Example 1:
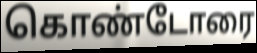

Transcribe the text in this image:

கொண்டோரை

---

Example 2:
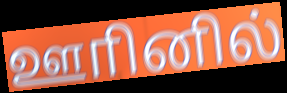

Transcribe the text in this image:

ஊரினில்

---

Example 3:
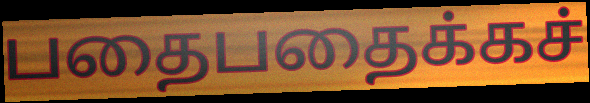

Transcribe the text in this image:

பதைபதைக்கச்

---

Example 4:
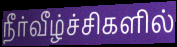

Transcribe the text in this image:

நீர்வீழ்ச்சிகளில்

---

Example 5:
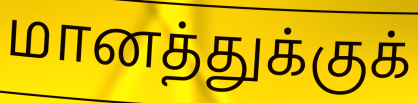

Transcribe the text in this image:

மானத்துக்குக்